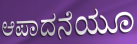
ಆಪಾದನೆಯೂ